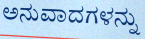
ಅನುವಾದಗಳನ್ನು